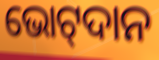
ଭୋଟ୍‌ଦାନ